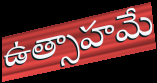
ఉత్సాహమే